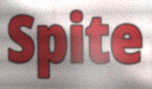
Spite